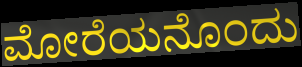
ಮೋರೆಯನೊಂದು